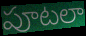
పూటలా